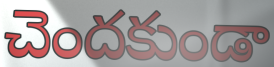
చెందకుండా